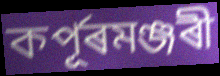
কৰ্পূৰমঞ্জৰী